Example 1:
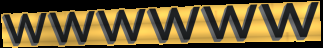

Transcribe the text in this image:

wwwwww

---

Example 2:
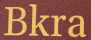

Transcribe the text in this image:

Bkra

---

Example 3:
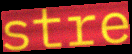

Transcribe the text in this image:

stre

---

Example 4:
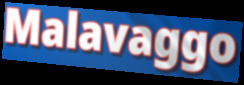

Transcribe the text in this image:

Malavaggo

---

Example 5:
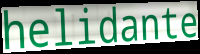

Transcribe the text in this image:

helidante